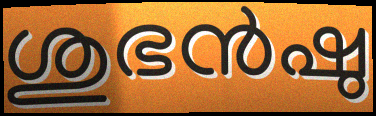
ശുഭൻഷു